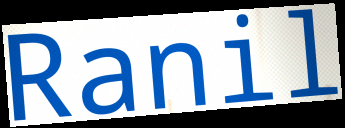
Ranil